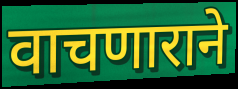
वाचणाराने